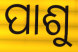
ପାଶୁ